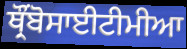
ਥ੍ਰੌਂਬੋਸਾਈਟੀਮੀਆ